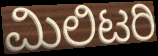
ಮಿಲಿಟರಿ